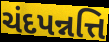
ચંદપન્નત્તિ